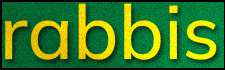
rabbis